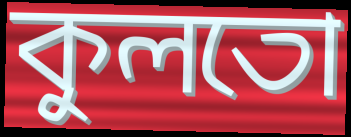
কুলতো